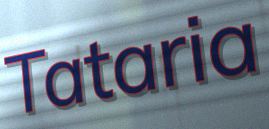
Tataria